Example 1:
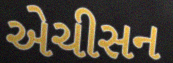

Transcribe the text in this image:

એચીસન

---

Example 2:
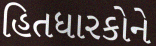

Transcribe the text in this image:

હિતધારકોને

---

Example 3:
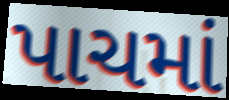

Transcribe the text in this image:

પાચમાં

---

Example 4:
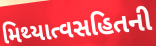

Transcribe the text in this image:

મિથ્યાત્વસહિતની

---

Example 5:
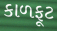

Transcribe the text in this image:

કાળફૂટ